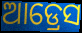
ଆଡ୍ରେସ